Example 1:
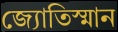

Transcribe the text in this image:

জ্যোতিস্মান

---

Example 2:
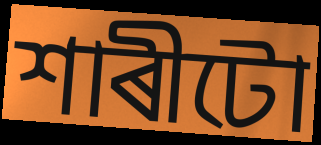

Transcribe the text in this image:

শাৰীটো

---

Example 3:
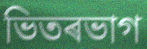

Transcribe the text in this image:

ভিতৰভাগ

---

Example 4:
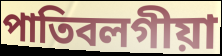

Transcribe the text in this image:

পাতিবলগীয়া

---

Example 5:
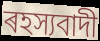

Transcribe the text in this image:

ৰহস্যবাদী